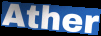
Ather